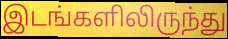
இடங்களிலிருந்து